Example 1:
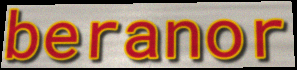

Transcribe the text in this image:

beranor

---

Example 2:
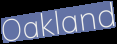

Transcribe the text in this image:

Oakland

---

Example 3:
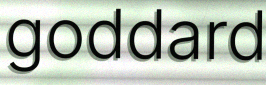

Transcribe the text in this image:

goddard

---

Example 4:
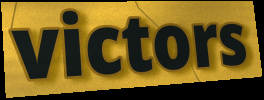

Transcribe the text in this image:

victors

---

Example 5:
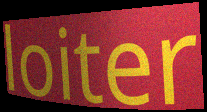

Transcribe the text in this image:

loiter